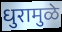
धुरामुळे